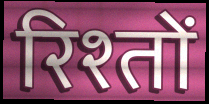
रिश्तों